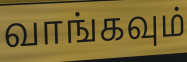
வாங்கவும்